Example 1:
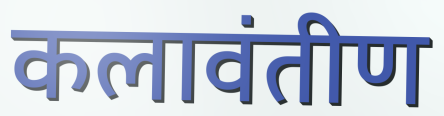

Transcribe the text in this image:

कलावंतीण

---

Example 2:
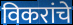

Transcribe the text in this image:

विकरांचे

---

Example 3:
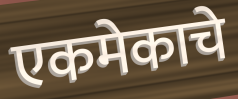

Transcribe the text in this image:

एकमेकाचे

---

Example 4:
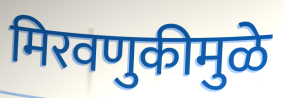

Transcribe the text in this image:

मिरवणुकीमुळे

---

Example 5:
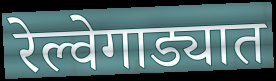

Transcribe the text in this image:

रेल्वेगाड्यात